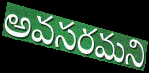
అవసరమని